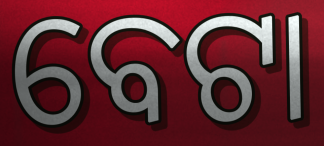
ବେଟା